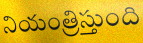
నియంత్రిస్తుంది